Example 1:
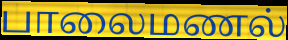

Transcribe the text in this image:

பாலைமணல்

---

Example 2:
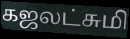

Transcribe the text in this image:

கஜலட்சுமி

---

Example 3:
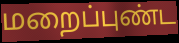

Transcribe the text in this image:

மறைப்புண்ட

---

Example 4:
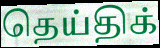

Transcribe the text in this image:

தெய்திக்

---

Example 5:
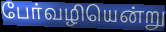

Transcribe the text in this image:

பேர்வழியென்று